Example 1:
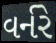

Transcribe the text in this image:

વર્નરે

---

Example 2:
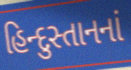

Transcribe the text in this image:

હિન્દુસ્તાનનાં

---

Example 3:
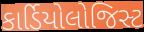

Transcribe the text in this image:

કાર્ડિયોલોજિસ્ટ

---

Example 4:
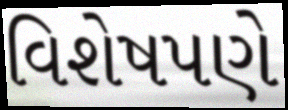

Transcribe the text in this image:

વિશેષપણે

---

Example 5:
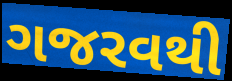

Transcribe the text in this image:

ગજરવથી